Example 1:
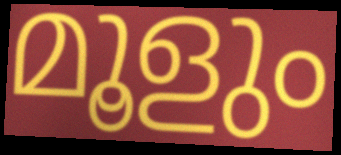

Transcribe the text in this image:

മൂളും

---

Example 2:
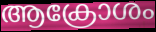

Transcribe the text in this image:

ആക്രോശം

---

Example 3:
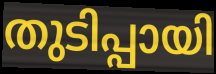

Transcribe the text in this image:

തുടിപ്പായി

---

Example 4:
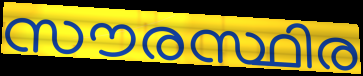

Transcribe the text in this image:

സൗരസ്ഥിര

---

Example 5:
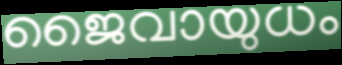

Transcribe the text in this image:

ജൈവായുധം